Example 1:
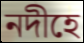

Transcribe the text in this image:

নদীহে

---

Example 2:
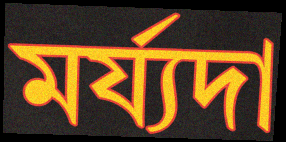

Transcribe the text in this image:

মৰ্য্যদা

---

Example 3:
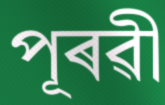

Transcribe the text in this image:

পূৰৱী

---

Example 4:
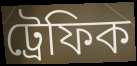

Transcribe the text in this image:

ট্ৰেফিক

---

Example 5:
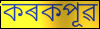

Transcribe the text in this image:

কৰকপূৱ